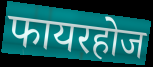
फायरहोज